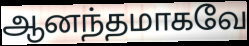
ஆனந்தமாகவே